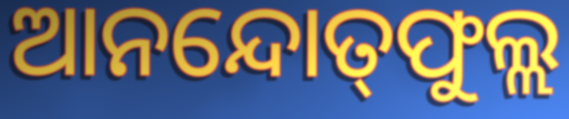
ଆନନ୍ଦୋତ୍‍ଫୁଲ୍ଲ